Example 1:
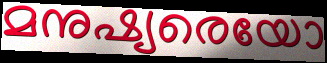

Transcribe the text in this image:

മനുഷ്യരെയോ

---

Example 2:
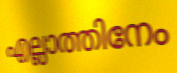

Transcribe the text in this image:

എല്ലാത്തിനേം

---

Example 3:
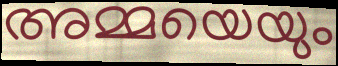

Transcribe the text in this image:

അമ്മയെയും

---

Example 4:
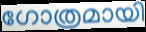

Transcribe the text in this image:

ഗോത്രമായി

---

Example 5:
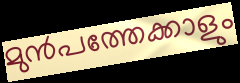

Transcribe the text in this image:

മുൻപത്തേക്കാളും